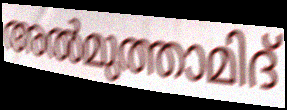
അൽമുത്താമിദ്